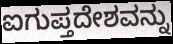
ಐಗುಪ್ತದೇಶವನ್ನು